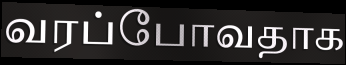
வரப்போவதாக